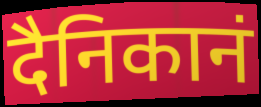
दैनिकानं